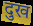
दुख